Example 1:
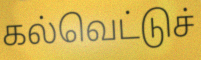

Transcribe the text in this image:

கல்வெட்டுச்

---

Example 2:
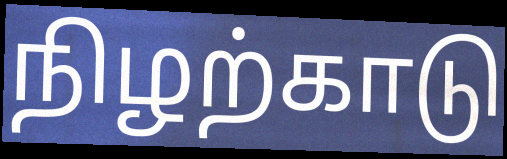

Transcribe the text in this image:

நிழற்காடு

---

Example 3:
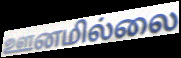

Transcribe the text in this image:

ஊனமில்லை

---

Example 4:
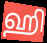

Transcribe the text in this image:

ஹி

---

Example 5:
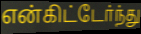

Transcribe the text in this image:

என்கிட்டேர்ந்து